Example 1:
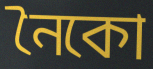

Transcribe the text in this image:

নৈকো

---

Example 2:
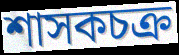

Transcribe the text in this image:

শাসকচক্র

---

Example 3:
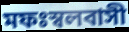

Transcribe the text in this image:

মফঃস্বলবাসী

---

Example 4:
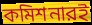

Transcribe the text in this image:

কমিশনারই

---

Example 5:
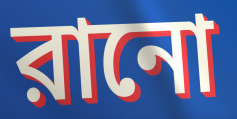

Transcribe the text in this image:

রানো